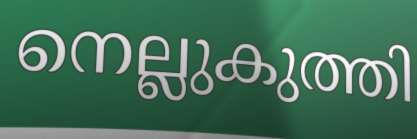
നെല്ലുകുത്തി